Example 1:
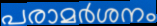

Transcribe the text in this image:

പരാമർശനം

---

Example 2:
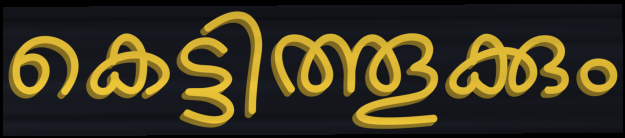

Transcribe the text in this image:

കെട്ടിത്തൂക്കും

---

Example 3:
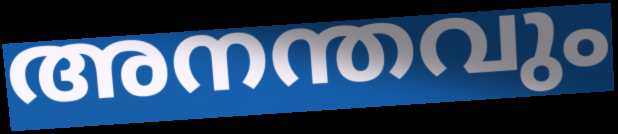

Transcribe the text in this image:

അനന്തവും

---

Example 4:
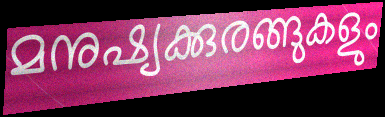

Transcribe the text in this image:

മനുഷ്യക്കുരങ്ങുകളും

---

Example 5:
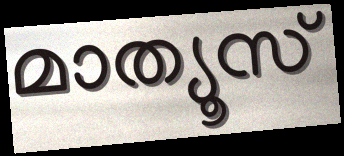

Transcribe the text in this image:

മാത്യൂസ്